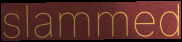
slammed